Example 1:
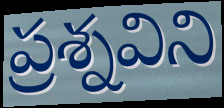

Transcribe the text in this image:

ప్రశ్నవిని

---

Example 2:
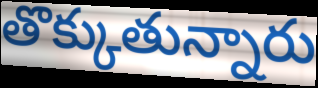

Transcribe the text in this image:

తొక్కుతున్నారు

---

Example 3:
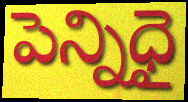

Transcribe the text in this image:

పెన్నిధై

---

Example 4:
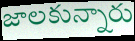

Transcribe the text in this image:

జాలకున్నారు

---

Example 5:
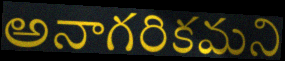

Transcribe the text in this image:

అనాగరికమని